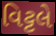
વિટ્ટલે